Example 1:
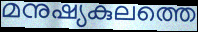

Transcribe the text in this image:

മനുഷ്യകുലത്തെ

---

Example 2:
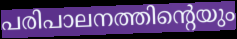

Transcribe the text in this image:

പരിപാലനത്തിന്റെയും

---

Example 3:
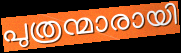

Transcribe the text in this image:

പുത്രന്മാരായി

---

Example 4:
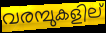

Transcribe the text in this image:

വരമ്പുകളില്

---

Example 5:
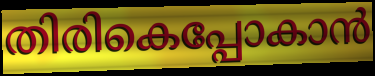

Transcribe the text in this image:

തിരികെപ്പോകാൻ